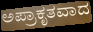
ಅಪ್ರಾಕೃತವಾದ